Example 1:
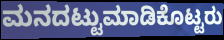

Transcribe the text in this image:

ಮನದಟ್ಟುಮಾಡಿಕೊಟ್ಟರು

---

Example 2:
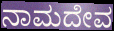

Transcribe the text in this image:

ನಾಮದೇವ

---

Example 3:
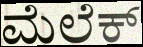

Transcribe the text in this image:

ಮೆಲೆಕ್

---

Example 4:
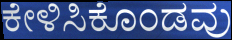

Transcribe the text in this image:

ಕೇಳಿಸಿಕೊಂಡವು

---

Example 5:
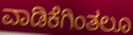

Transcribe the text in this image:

ವಾಡಿಕೆಗಿಂತಲೂ